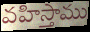
వహిస్తాము